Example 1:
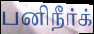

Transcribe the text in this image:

பனிநீர்க்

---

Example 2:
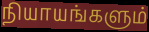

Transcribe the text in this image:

நியாயங்களும்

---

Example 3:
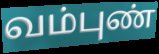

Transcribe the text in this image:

வம்புண்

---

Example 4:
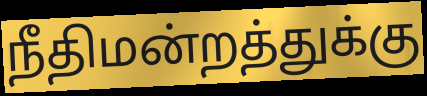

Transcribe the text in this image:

நீதிமன்றத்துக்கு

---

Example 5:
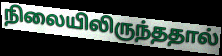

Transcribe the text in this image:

நிலையிலிருந்ததால்